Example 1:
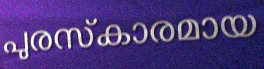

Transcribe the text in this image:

പുരസ്‌കാരമായ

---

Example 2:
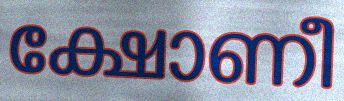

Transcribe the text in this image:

ക്ഷോണീ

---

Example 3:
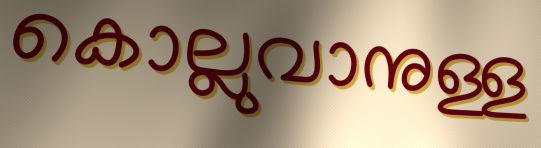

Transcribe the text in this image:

കൊല്ലുവാനുള്ള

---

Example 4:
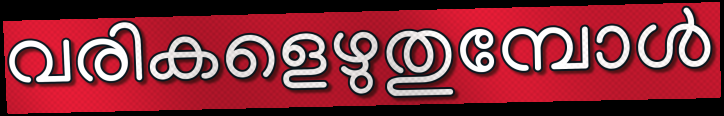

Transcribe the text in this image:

വരികളെഴുതുമ്പോൾ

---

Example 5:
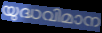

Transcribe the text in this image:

യുദ്ധവിമാന